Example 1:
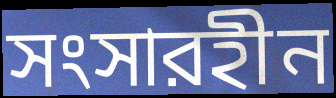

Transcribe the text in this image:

সংসারহীন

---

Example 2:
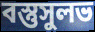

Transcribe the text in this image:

বস্তুসুলভ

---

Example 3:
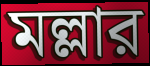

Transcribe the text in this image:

মল্লার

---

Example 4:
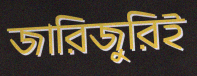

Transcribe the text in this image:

জারিজুরিই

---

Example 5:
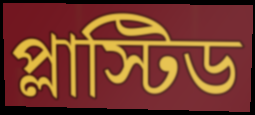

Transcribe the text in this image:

প্লাস্টিড